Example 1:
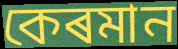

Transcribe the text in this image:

কেৰমান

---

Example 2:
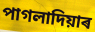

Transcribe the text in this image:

পাগলাদিয়াৰ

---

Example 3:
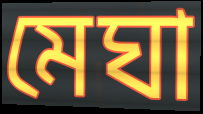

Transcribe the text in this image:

মেঘা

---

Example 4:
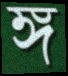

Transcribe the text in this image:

ঙ্গ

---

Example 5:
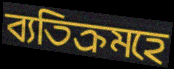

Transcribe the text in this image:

ব্যতিক্ৰমহে